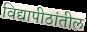
विद्यापीठांतील